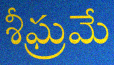
శీఘ్రమే